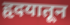
हृदयातून